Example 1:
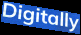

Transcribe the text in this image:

Digitally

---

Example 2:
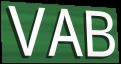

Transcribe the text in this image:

VAB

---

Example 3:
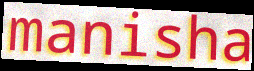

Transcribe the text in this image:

manisha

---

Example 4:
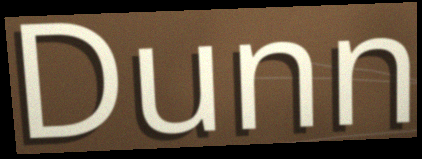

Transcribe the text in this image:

Dunn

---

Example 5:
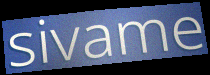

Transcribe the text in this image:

sivame